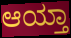
ಆಯ್ತಾ